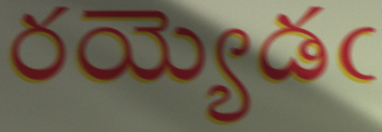
రయ్యెడఁ